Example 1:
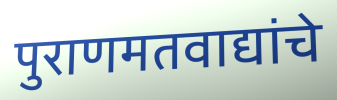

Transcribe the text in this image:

पुराणमतवाद्यांचे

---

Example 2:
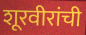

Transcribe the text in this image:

शूरवीरांची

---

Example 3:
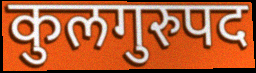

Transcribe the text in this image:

कुलगुरुपद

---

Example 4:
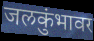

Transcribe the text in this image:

जलकुंभावर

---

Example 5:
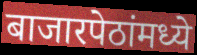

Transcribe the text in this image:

बाजारपेठांमध्ये